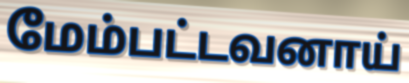
மேம்பட்டவனாய்